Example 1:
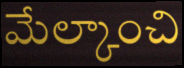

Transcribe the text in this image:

మేల్కాంచి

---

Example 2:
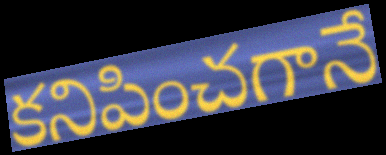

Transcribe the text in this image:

కనిపించగానే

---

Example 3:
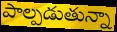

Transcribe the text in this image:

పాల్పడుతున్నా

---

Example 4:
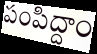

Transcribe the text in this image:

పంపిద్దాం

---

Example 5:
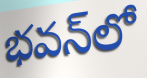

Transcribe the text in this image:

భవన్‌లో